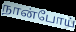
நான்போய்